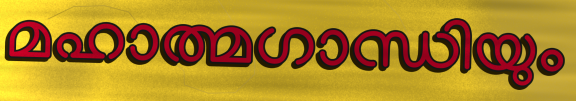
മഹാത്മഗാന്ധിയും